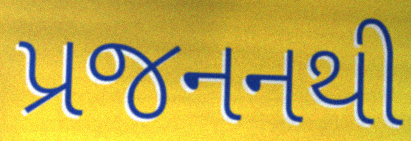
પ્રજનનથી